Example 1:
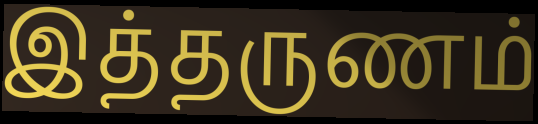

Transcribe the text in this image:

இத்தருணம்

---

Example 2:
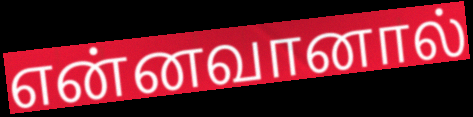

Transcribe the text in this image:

என்னவானால்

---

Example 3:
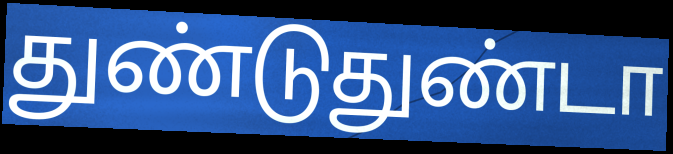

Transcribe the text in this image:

துண்டுதுண்டா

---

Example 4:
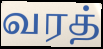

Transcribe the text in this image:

வரத்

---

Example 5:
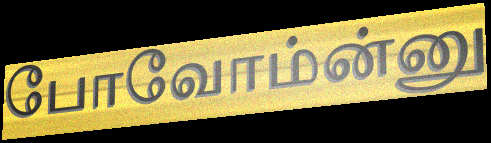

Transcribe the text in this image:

போவோம்ன்னு